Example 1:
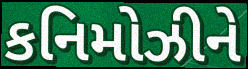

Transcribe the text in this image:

કનિમોઝીને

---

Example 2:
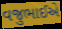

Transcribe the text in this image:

વજુભાઈએ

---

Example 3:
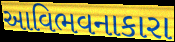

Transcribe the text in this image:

આવિભવનાકારા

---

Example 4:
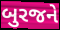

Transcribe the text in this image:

બુરજને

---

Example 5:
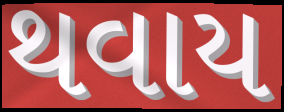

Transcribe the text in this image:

થવાય